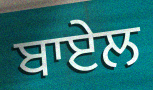
ਬਾਏਲ